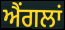
ਐਂਗਲਾਂ